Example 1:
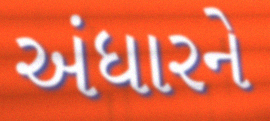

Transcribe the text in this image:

અંધારને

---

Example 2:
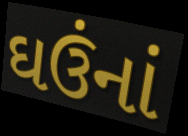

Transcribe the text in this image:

ઘઉંનાં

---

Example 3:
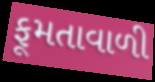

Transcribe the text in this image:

ફૂમતાવાળી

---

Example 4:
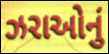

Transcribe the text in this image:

ઝરાઓનું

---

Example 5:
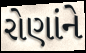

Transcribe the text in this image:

રોણાંને